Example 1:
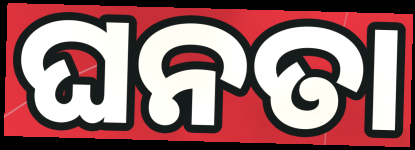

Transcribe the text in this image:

ଘନତା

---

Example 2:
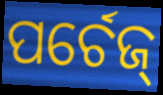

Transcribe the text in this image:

ପର୍ଚେଜ୍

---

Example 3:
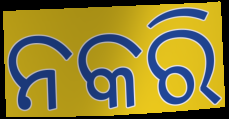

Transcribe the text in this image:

ନକରି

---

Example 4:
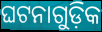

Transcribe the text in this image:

ଘଟନାଗୁଡ଼ିକ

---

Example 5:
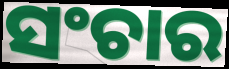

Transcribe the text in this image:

ସଂଚାର